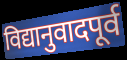
विद्यानुवादपूर्व